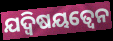
ଯଦ୍ଵିଷୟତ୍ଵେନ